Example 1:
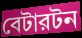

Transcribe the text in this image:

বেটারটন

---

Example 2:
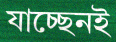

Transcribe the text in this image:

যাচ্ছেনই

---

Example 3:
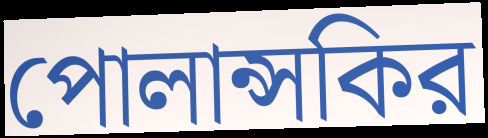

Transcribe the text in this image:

পোলান্সকির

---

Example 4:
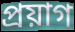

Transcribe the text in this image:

প্রয়াগ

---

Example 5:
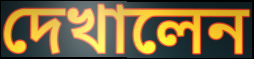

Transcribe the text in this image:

দেখালেন